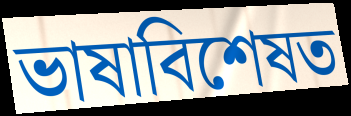
ভাষাবিশেষত